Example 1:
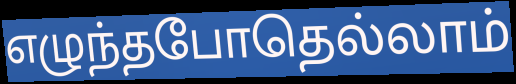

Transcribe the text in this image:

எழுந்தபோதெல்லாம்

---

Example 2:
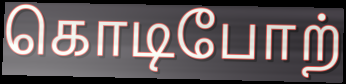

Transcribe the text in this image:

கொடிபோற்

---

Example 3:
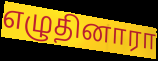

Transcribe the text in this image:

எழுதினாரா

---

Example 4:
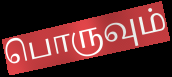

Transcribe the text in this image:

பொருவும்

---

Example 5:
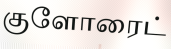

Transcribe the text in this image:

குளோரைட்